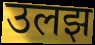
उलझ